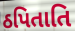
ઠપિતાતિ